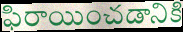
ఫిరాయించడానికి